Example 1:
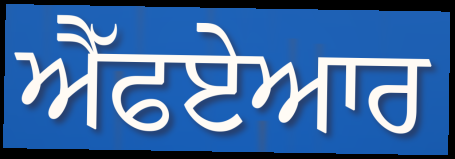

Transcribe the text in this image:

ਐੱਫਏਆਰ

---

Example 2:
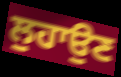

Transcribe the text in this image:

ਲੁਹਾਉਣ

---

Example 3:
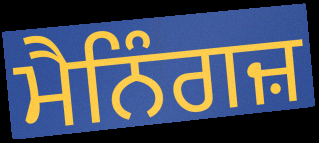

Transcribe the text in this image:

ਮੈਨਿੰਗਜ਼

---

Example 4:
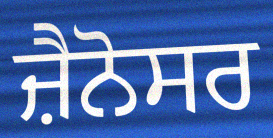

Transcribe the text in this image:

ਜ਼ੈਨੋਸਰ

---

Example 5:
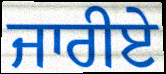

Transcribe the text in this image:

ਜਾਰੀਏ